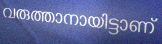
വരുത്താനായിട്ടാണ്